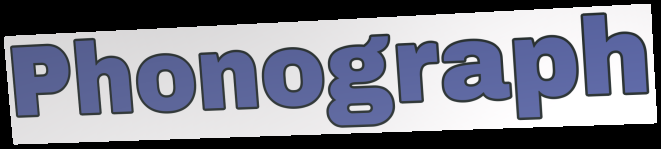
Phonograph